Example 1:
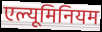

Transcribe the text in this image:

एल्यूमिनियम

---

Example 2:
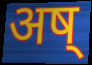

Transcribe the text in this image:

अष्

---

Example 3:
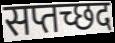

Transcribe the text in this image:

सप्तच्छद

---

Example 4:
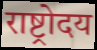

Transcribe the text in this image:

राष्ट्रोदय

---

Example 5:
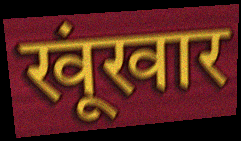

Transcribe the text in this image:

खूंखार